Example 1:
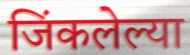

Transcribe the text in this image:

जिंकलेल्या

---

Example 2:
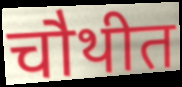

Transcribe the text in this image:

चौथीत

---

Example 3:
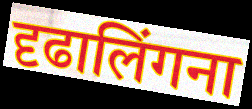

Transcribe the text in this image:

दृढालिंगना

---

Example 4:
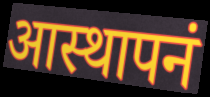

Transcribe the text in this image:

आस्थापनं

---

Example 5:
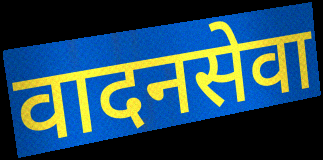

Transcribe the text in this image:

वादनसेवा